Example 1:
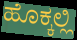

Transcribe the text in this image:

ಹೊಕ್ಕಲ್ಲಿ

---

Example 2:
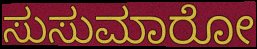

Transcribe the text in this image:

ಸುಸುಮಾರೋ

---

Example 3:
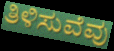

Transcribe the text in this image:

ತಿಳಿಸುವೆವು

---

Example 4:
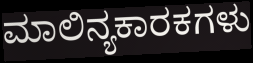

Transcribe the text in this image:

ಮಾಲಿನ್ಯಕಾರಕಗಳು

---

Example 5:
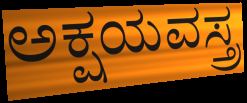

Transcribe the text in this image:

ಅಕ್ಷಯವಸ್ತ್ರ